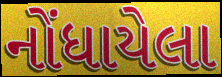
નોંધાયેલા